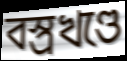
বস্ত্রখণ্ডে